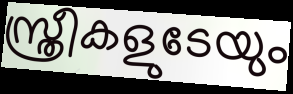
സ്ത്രീകളുടേയും